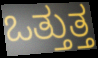
ಒತ್ತುತ್ತ